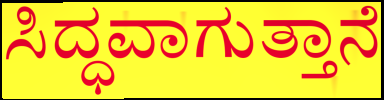
ಸಿದ್ಧವಾಗುತ್ತಾನೆ